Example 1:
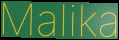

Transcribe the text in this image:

Malika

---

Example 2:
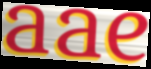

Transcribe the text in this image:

aae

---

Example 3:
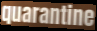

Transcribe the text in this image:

quarantine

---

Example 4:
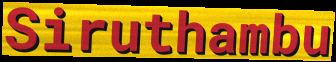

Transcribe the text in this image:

Siruthambu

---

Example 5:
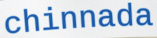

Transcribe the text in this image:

chinnada